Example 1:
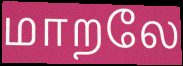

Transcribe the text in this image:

மாறலே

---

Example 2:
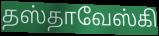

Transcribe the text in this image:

தஸ்தாவேஸ்கி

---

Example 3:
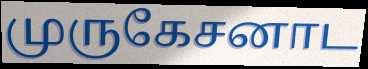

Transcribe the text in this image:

முருகேசனாட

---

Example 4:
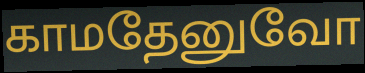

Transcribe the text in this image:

காமதேனுவோ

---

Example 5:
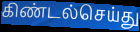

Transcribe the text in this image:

கிண்டல்செய்து